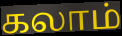
கலாம்